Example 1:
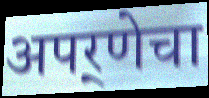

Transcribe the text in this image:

अपर्णेचा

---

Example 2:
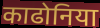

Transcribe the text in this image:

काढोनिया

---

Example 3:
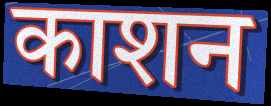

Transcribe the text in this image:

काशन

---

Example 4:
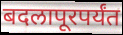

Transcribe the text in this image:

बदलापूरपर्यंत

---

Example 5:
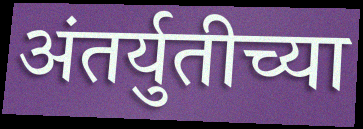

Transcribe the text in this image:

अंतर्युतीच्या